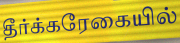
தீர்க்கரேகையில்